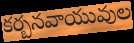
కర్బనవాయువుల